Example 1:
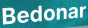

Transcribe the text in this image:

Bedonar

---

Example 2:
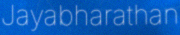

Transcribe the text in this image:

Jayabharathan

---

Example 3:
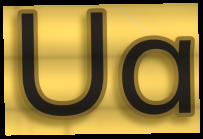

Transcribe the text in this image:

Ua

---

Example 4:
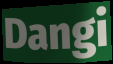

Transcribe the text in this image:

Dangi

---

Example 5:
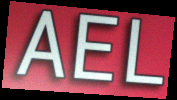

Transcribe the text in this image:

AEL